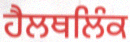
ਹੈਲਥਲਿੰਕ